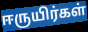
ஈருயிர்கள்